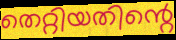
തെറ്റിയതിന്റെ